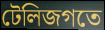
টেলিজগতে